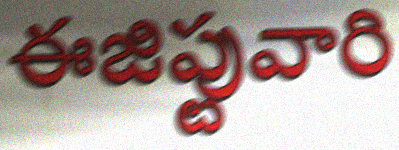
ఈజిప్టువారి